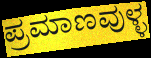
ಪ್ರಮಾಣವುಳ್ಳ